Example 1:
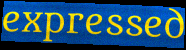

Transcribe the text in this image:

expressed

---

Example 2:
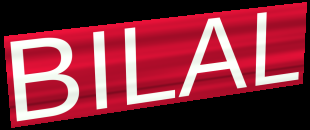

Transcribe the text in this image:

BILAL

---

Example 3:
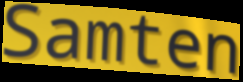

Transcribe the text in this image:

Samten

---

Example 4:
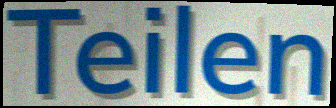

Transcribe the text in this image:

Teilen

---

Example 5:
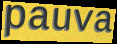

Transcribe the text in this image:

pauva